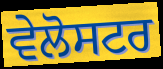
ਵੇਲੋਸਟਰ